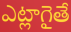
ఎట్లాగైతే